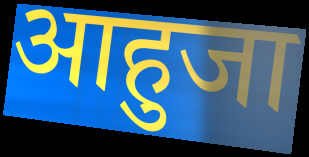
आहुजा